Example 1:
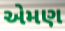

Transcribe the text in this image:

એમણ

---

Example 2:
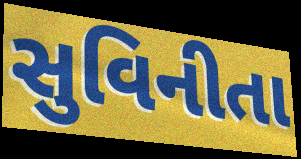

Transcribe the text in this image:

સુવિનીતા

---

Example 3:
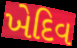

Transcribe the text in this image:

ખેદિવ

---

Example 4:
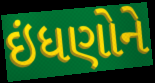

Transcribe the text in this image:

ઇંધણોને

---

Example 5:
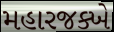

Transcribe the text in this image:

મહારજક્ખે